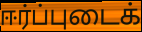
ஈர்ப்புடைக்